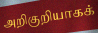
அறிகுறியாகக்